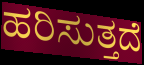
ಹರಿಸುತ್ತದೆ